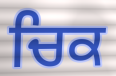
ਚਿਕ